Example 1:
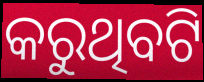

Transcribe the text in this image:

କରୁଥିବଟି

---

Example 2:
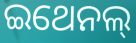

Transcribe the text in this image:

ଇଥେନଲ୍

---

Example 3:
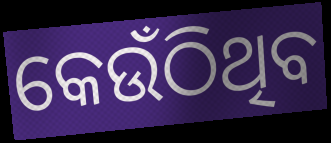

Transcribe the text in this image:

କେଉଁଠିଥିବ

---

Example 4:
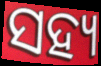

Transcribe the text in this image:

ସହ୍ୟ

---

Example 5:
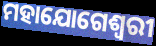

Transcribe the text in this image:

ମହାଯୋଗେଶ୍ୱରୀ